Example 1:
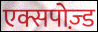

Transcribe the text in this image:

एक्सपोज़्ड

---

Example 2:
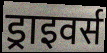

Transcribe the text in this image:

ड्राइवर्स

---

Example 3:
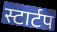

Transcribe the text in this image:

स्टार्टप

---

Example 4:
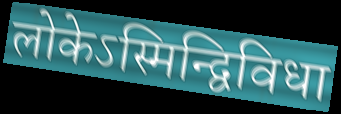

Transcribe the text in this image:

लोकेऽस्मिन्द्विविधा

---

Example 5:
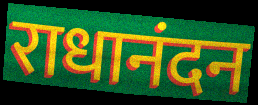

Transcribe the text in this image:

राधानंदन